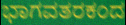
ಭಾಗವತರಕಂದ